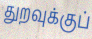
துறவுக்குப்